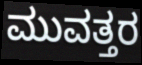
ಮುವತ್ತರ